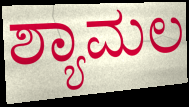
ಶ್ಯಾಮಲ